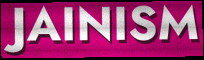
JAINISM